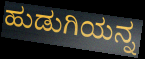
ಹುಡುಗಿಯನ್ನ